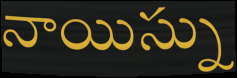
నాయిస్ను